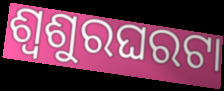
ଶ୍ୱଶୁରଘରଟା